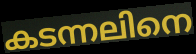
കടന്നലിനെ